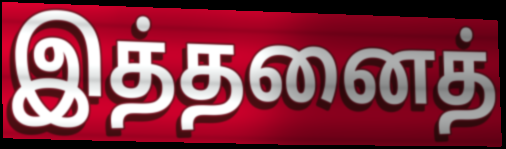
இத்தனைத்